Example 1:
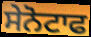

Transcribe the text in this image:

ਸੇਨੋਟਾਫ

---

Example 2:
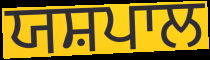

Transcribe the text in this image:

ਯਸ਼ਪਾਲ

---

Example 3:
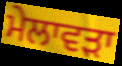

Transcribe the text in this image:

ਮੇਲਾਵੜਾ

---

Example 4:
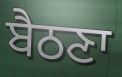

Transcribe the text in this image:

ਬੈਠਣਾ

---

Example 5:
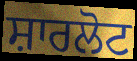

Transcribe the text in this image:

ਸ਼ਾਰਲੋਟ